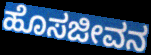
ಹೊಸಜೀವನ